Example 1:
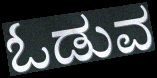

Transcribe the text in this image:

ಓಡುವ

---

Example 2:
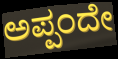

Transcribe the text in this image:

ಅಪ್ಪಂದೇ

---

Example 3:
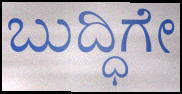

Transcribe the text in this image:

ಬುದ್ಧಿಗೇ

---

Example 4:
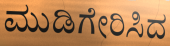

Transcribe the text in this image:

ಮುಡಿಗೇರಿಸಿದ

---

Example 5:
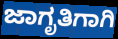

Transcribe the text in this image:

ಜಾಗೃತಿಗಾಗಿ